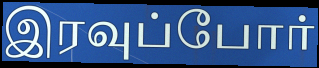
இரவுப்போர்